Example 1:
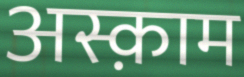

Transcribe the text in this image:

अस्क़ाम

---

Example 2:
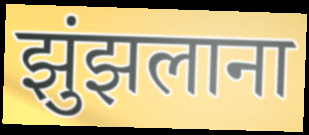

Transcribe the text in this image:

झुंझलाना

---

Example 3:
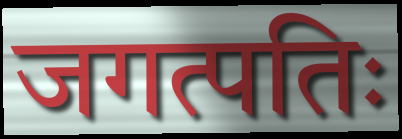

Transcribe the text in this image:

जगत्पतिः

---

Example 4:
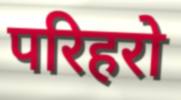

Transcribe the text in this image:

परिहरो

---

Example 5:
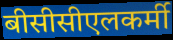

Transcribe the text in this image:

बीसीसीएलकर्मी